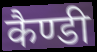
कैण्डी